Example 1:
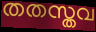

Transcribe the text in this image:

തതസ്തവ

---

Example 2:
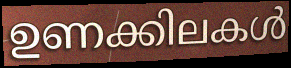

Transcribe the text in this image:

ഉണക്കിലകൾ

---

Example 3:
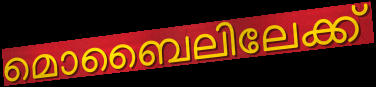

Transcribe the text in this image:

മൊബൈലിലേക്ക്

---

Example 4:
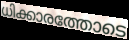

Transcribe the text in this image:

ധിക്കാരത്തോടെ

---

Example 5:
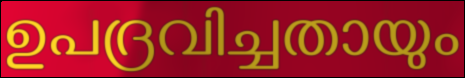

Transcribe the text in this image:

ഉപദ്രവിച്ചതായും